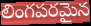
లింగపరమైన